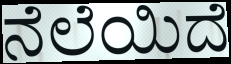
ನೆಲೆಯಿದೆ